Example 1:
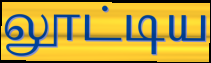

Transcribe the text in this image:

லூட்டிய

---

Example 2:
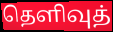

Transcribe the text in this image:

தெளிவுத்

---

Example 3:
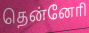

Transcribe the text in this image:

தென்னேரி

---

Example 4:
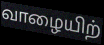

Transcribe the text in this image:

வாழையிற்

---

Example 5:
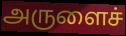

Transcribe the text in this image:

அருளைச்